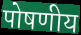
पोषणीय